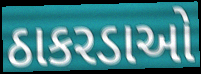
ઠાકરડાઓ